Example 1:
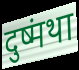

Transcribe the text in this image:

दुष्मंथा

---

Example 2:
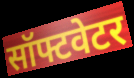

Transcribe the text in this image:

सॉफ्टवेटर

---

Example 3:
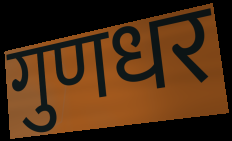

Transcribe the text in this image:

गुणधर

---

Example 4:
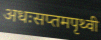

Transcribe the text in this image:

अधःसप्तमपृथ्वी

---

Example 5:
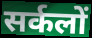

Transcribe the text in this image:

सर्कलों